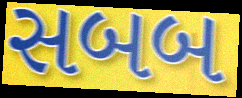
સબબ